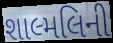
શાલ્મલિની